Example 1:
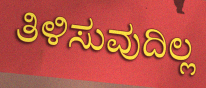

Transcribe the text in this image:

ತಿಳಿಸುವುದಿಲ್ಲ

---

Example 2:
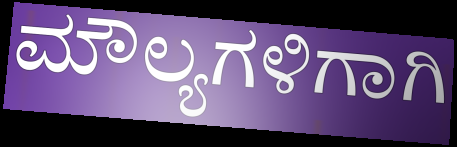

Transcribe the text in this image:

ಮೌಲ್ಯಗಳಿಗಾಗಿ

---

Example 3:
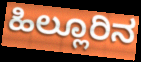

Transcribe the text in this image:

ಹಿಲ್ಲೂರಿನ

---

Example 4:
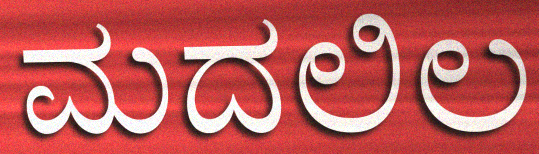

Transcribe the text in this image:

ಮದಲಿಲ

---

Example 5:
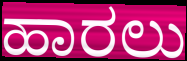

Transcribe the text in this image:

ಹಾರಲು